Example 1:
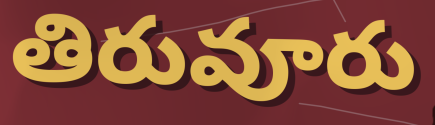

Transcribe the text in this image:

తిరువూరు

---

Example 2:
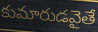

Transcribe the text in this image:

కుమారుడవైతే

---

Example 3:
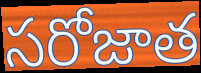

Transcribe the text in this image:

సరోజాత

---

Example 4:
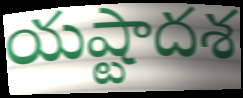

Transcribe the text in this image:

యష్టాదశ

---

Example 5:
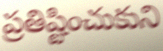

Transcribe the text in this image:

ప్రతిష్టించుకుని